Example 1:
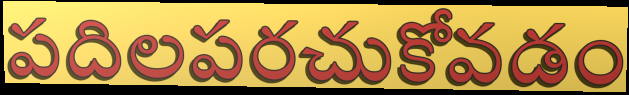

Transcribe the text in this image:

పదిలపరచుకోవడం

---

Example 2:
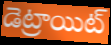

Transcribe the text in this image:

డెట్రాయిట్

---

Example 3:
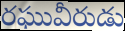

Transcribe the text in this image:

రఘువీరుడు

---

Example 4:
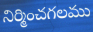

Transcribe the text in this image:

నిర్మించగలము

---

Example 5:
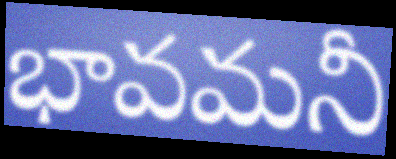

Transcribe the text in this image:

భావమనీ